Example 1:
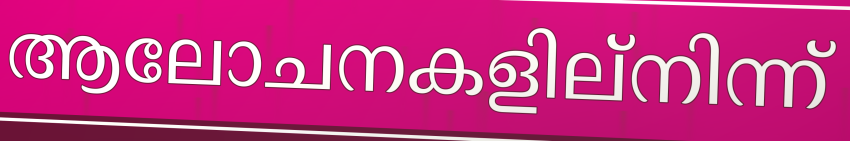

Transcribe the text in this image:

ആലോചനകളില്നിന്ന്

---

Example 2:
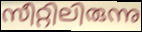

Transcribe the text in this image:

സീറ്റിലിരുന്നു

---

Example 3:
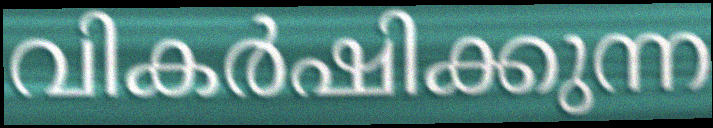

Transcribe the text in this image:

വികർഷിക്കുന്ന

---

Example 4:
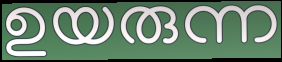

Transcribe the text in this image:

ഉയരുന്ന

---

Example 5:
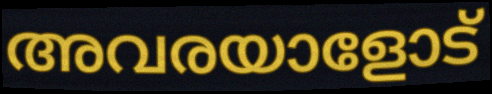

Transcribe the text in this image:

അവരയാളോട്